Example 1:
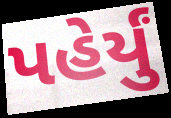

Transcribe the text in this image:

પહેર્યું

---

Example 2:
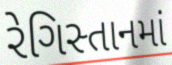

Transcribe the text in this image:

રેગિસ્તાનમાં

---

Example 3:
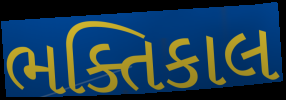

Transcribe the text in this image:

ભક્તિકાલ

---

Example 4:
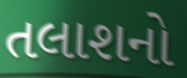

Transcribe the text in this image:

તલાશનો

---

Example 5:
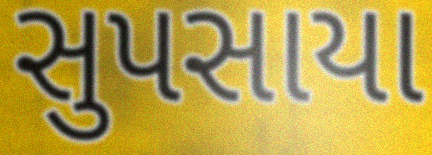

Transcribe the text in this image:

સુપસાયા